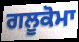
ਗਲੂਕੋਮਾ